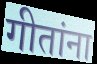
गीतांना